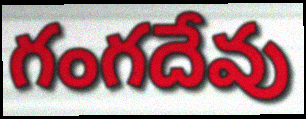
గంగదేవు